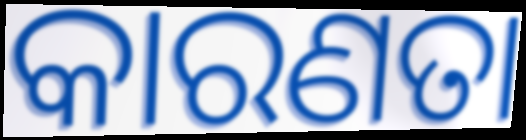
କାରଣତା